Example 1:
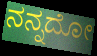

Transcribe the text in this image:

ನನ್ನದೋ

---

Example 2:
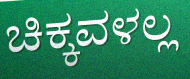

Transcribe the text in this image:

ಚಿಕ್ಕವಳಲ್ಲ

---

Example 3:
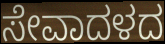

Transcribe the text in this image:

ಸೇವಾದಳದ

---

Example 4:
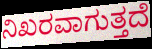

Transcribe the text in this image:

ನಿಖರವಾಗುತ್ತದೆ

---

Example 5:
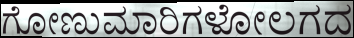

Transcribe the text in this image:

ಗೋಣುಮಾರಿಗಳೋಲಗದ